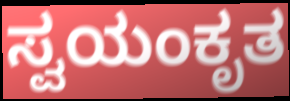
ಸ್ವಯಂಕೃತ